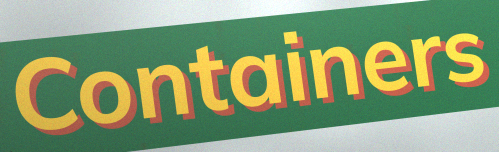
Containers